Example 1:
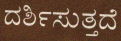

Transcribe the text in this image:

ದರ್ಶಿಸುತ್ತದೆ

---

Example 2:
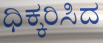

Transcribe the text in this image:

ಧಿಕ್ಕರಿಸಿದ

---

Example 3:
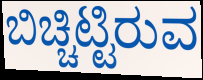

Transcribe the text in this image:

ಬಿಚ್ಚಿಟ್ಟಿರುವ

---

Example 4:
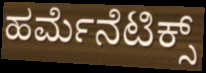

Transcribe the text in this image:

ಹರ್ಮೆನೆಟಿಕ್ಸ್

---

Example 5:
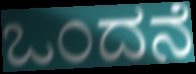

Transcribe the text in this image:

ಒಂದನೆ